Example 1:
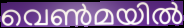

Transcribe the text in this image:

വെൺമയിൽ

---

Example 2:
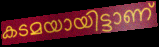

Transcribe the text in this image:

കടമയായിട്ടാണ്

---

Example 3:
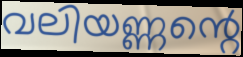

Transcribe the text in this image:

വലിയണ്ണന്റെ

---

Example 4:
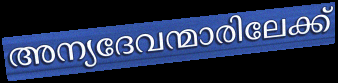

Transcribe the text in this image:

അന്യദേവന്മാരിലേക്ക്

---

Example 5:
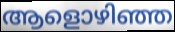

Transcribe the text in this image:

ആളൊഴിഞ്ഞ